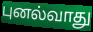
புனல்வாது